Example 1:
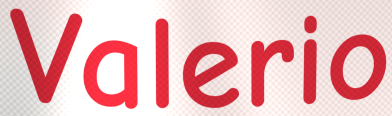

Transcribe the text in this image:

Valerio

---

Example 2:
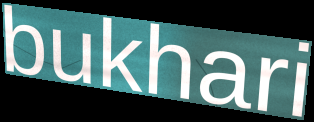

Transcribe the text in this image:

bukhari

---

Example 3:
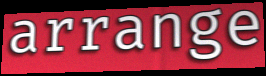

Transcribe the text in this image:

arrange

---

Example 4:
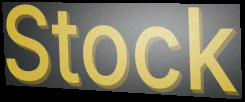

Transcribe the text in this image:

Stock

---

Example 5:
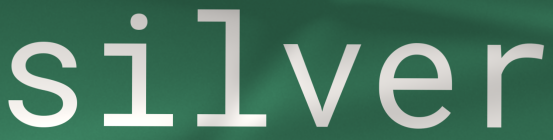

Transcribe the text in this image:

silver